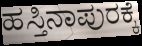
ಹಸ್ತಿನಾಪುರಕ್ಕೆ